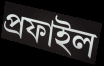
প্ৰফাইল